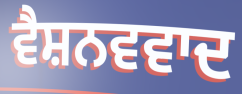
ਵੈਸ਼ਨਵਵਾਦ